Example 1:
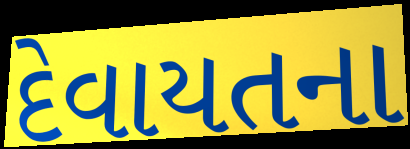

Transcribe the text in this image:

દેવાયતના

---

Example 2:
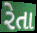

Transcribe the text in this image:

રેતા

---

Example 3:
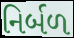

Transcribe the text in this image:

નિર્બળ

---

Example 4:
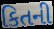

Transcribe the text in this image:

કિતની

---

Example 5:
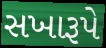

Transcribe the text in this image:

સખારૂપે